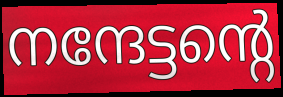
നന്ദേട്ടന്റെ